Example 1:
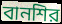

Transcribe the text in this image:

বানশির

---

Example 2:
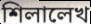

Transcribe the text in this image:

শিলালেখ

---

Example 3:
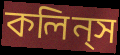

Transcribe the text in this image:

কলিন্‌স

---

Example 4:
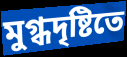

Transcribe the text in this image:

মুগ্ধদৃষ্টিতে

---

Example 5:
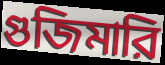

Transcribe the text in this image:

গুজিমারি